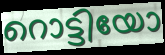
റൊട്ടിയോ